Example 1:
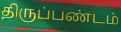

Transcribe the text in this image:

திருப்பண்டம்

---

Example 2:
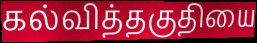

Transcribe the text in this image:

கல்வித்தகுதியை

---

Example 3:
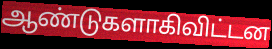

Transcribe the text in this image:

ஆண்டுகளாகிவிட்டன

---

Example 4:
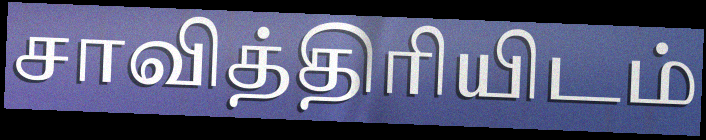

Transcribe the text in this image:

சாவித்திரியிடம்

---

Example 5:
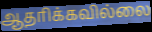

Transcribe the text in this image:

ஆதரிக்கவில்லை